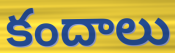
కందాలు